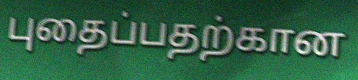
புதைப்பதற்கான